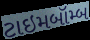
ટાઇમબૉમ્બ